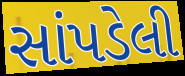
સાંપડેલી